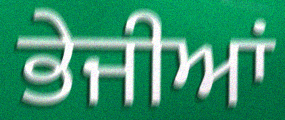
ਭੇਜੀਆਂ